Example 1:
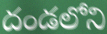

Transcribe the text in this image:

దండలోని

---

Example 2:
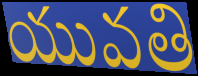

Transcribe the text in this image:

యువతి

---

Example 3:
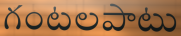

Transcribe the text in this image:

గంటలపాటు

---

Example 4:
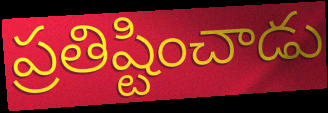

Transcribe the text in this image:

ప్రతిష్టించాడు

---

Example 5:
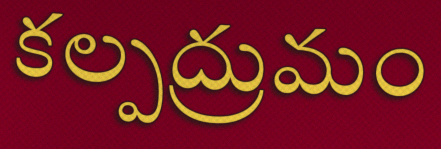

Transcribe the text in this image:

కల్పద్రుమం